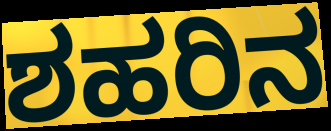
ಶಹರಿನ